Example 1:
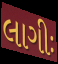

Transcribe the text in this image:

લાગીઃ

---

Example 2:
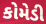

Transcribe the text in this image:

કોમેડી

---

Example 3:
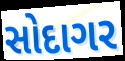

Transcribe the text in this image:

સોદાગર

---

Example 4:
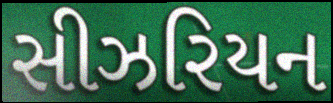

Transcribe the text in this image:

સીઝરિયન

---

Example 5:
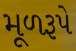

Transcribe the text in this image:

મૂળરૂપે